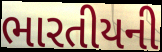
ભારતીયની